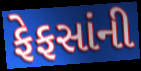
ફેફસાંની